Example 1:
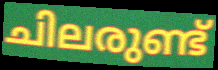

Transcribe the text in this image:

ചിലരുണ്ട്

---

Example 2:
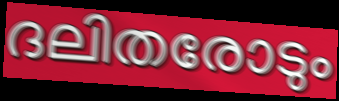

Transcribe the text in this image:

ദലിതരോടും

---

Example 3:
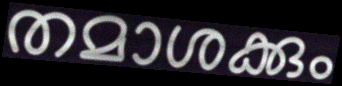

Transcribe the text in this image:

തമാശക്കും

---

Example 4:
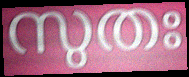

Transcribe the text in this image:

സുതഃ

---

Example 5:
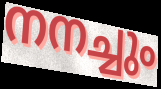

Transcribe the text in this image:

നനച്ചും